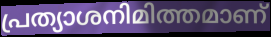
പ്രത്യാശനിമിത്തമാണ്